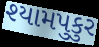
શ્યામપુકુર